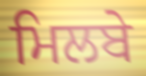
ਮਿਲਬੇ